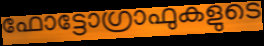
ഫോട്ടോഗ്രാഫുകളുടെ